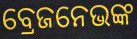
ବ୍ରେଜନେଭଙ୍କ